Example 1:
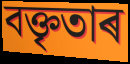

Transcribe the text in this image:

বক্তৃতাৰ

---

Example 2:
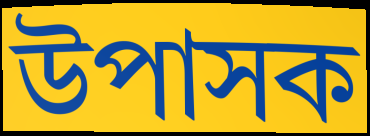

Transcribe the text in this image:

উপাসক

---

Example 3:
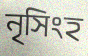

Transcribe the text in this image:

নৃসিংহ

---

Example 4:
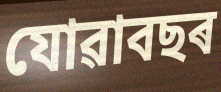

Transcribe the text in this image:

যোৱাবছৰ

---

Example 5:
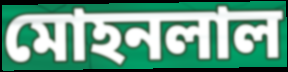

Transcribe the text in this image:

মোহনলাল